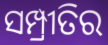
ସମ୍ପ୍ରୀତିର